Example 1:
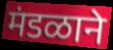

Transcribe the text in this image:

मंडळाने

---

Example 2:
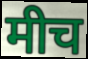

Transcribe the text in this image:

मीच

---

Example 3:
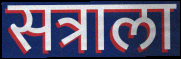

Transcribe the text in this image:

सत्राला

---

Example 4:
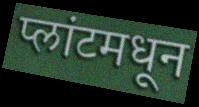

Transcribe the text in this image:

प्लांटमधून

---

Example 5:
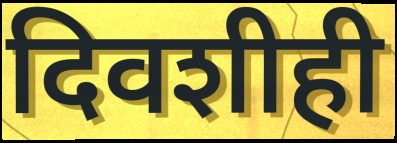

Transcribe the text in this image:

दिवशीही